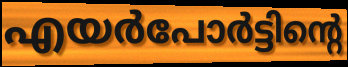
എയർപോർട്ടിന്റെ